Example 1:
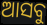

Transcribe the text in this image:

ଆସବୁ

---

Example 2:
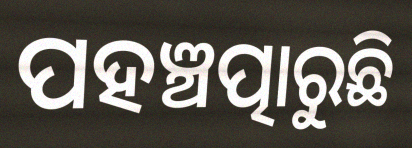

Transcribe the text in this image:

ପହଞ୍ଚତ୍ପାରୁଛି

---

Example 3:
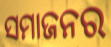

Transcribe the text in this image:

ସମାଜନର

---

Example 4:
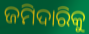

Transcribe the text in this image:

ଜମିଦାରିକୁ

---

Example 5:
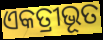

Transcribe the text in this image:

ଏକତ୍ରୀଭୂତ